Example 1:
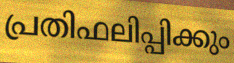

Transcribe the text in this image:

പ്രതിഫലിപ്പിക്കും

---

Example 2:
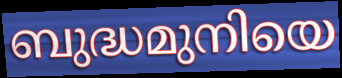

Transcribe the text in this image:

ബുദ്ധമുനിയെ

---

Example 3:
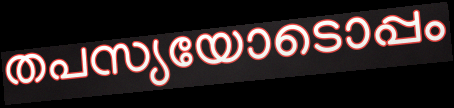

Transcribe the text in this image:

തപസ്യയോടൊപ്പം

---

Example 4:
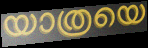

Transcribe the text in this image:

യാത്രയെ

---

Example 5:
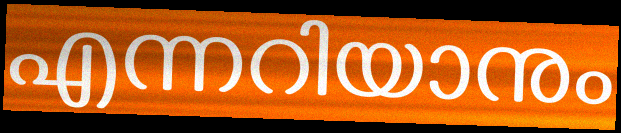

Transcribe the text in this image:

എന്നറിയാനും